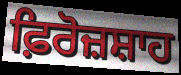
ਫ਼ਿਰੋਜ਼ਸ਼ਾਹ